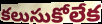
కలుసుకోలేక